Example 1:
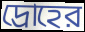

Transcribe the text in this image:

দ্রোহের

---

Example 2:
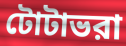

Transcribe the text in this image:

টোটাভরা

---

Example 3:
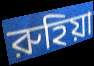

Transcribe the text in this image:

রুহিয়া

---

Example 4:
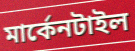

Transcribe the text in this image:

মার্কেনটাইল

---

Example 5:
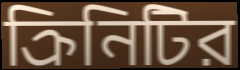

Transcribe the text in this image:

ক্রিনিটির